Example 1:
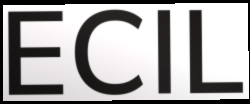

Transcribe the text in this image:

ECIL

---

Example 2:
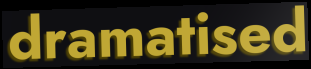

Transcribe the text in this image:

dramatised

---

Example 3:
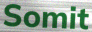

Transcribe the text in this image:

Somit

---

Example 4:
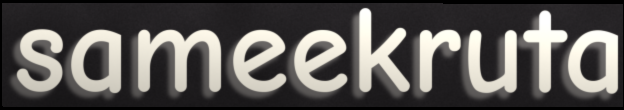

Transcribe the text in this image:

sameekruta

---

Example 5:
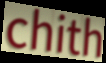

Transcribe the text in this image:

chith